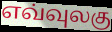
எவ்வுலகு